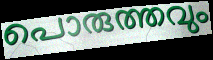
പൊരുത്തവും